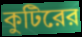
কুটিরের